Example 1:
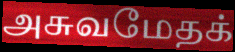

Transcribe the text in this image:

அசுவமேதக்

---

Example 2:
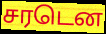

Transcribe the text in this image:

சரடென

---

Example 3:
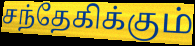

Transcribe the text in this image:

சந்தேகிக்கும்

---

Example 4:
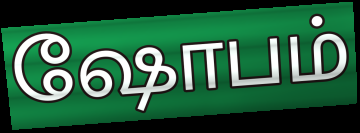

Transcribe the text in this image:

ஷோபம்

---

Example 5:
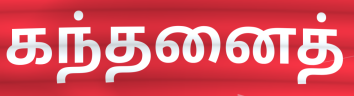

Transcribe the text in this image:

கந்தனைத்